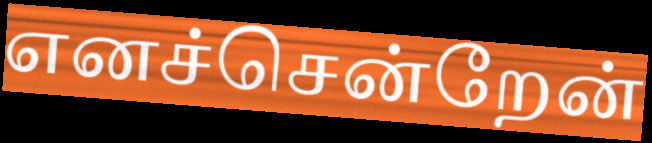
எனச்சென்றேன்